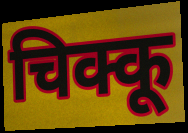
चिक्कू